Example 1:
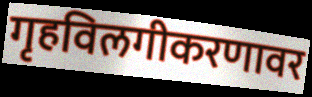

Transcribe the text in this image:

गृहविलगीकरणावर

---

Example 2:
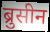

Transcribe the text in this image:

ब्रुसीन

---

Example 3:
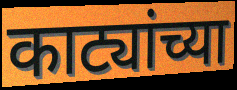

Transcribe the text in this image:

काट्यांच्या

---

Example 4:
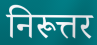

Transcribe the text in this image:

निरूत्तर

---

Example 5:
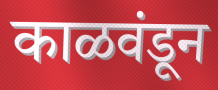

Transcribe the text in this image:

काळवंडून